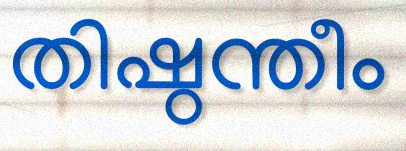
തിഷ്ഠന്തീം